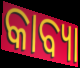
କାବ୍ୟା